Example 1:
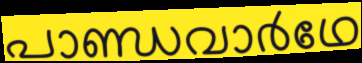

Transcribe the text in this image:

പാണ്ഡവാർഥേ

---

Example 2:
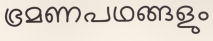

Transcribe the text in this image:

ഭ്രമണപഥങ്ങളും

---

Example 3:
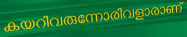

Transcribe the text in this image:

കയറിവരുന്നോരിവളാരാണ്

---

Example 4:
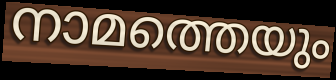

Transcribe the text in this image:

നാമത്തെയും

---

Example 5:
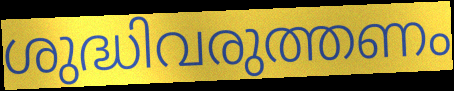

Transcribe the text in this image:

ശുദ്ധിവരുത്തണം